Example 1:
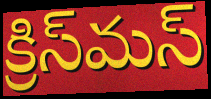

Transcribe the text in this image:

క్రిస్‌మస్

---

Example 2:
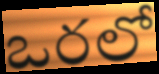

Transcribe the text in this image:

ఒరలో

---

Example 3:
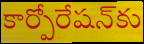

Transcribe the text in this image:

కార్పోరేషన్‌కు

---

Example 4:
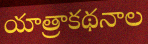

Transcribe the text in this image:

యాత్రాకథనాల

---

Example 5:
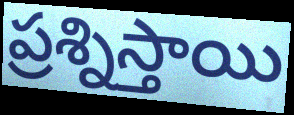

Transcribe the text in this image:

ప్రశ్నిస్తాయి